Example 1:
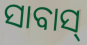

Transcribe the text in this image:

ସାବାସ୍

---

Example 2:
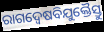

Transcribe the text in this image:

ରାଗଦ୍ୱେଷବିଯୁକ୍ତୈସ୍ତୁ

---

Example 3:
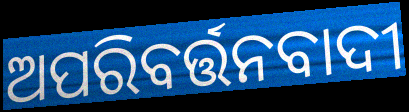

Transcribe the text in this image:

ଅପରିବର୍ତ୍ତନବାଦୀ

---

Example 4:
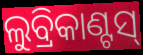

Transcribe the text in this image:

ଲୁବ୍ରିକାଣ୍ଟସ୍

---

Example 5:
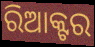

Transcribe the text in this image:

ରିଆକ୍ଟର